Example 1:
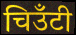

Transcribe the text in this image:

चिउँटी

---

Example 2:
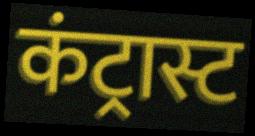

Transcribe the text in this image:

कंट्रास्ट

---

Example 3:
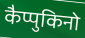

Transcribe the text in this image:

कैप्पुकिनो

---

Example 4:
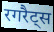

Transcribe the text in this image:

रगरैट्स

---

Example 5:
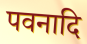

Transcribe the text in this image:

पवनादि